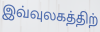
இவ்வுலகத்திற்